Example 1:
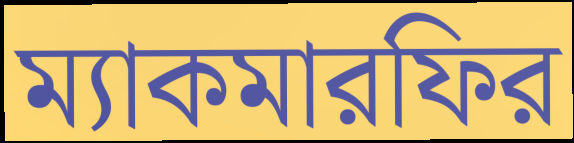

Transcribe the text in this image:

ম্যাকমারফির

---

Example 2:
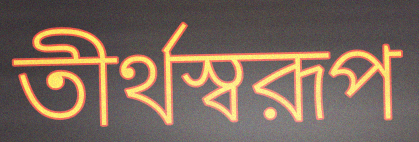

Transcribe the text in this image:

তীর্থস্বরূপ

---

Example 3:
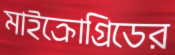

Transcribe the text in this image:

মাইক্রোগ্রিডের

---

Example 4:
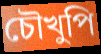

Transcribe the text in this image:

চৌখুপি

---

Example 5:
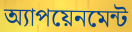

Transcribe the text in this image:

অ্যাপয়েনমেন্ট